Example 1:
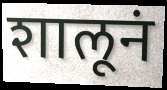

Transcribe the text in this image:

शालूनं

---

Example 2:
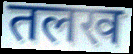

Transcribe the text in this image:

तलख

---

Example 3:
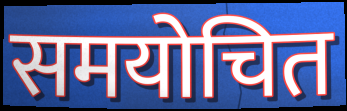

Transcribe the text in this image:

समयोचित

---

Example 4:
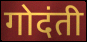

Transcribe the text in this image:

गोदंती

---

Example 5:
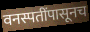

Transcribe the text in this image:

वनस्पतींपासूनच